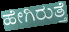
ಹೇಗಿರುತ್ತೆ